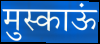
मुस्काऊं